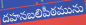
దహనబలిపీఠమును